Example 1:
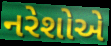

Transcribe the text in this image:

નરેશોએ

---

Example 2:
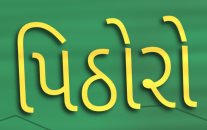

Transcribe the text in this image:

પિઠોરો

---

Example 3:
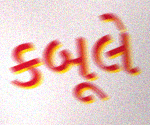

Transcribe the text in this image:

કબૂલે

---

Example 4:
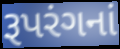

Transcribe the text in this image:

રૂપરંગનાં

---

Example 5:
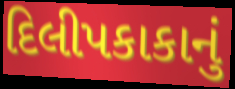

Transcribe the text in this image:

દિલીપકાકાનું